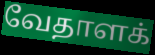
வேதாளக்